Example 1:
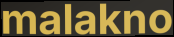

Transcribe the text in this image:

malakno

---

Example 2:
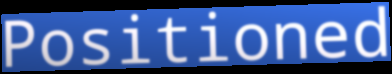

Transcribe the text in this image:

Positioned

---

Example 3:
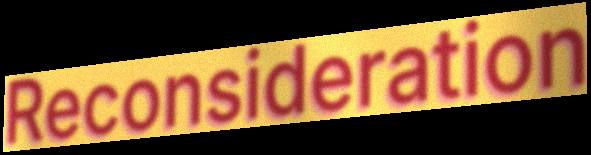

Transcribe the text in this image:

Reconsideration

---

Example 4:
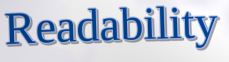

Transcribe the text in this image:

Readability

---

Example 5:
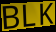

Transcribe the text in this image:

BLK